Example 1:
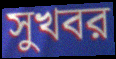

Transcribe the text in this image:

সুখবর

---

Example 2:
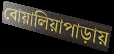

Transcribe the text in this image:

বোয়ালিয়াপাড়ায়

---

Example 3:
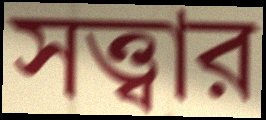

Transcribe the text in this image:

সত্ত্বার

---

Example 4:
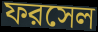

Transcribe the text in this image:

ফরসেল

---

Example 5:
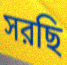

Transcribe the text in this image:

সরছি